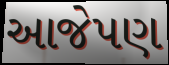
આજેપણ